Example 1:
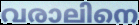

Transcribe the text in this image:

വരാലിനെ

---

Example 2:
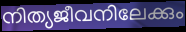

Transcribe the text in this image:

നിത്യജീവനിലേക്കും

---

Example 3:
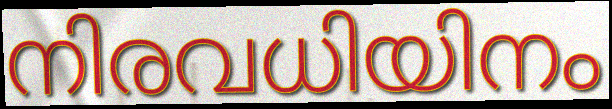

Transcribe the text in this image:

നിരവധിയിനം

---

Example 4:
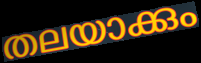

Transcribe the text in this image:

തലയാക്കും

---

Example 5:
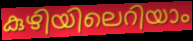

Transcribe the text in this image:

കുഴിയിലെറിയാം